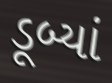
ડૂબ્યાં